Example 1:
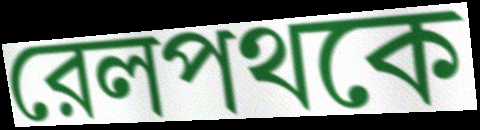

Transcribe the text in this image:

রেলপথকে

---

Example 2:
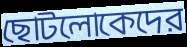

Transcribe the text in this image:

ছোটলোকেদের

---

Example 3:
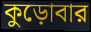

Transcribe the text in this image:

কুড়োবার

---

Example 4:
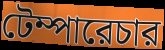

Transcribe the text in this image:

টেম্পারেচার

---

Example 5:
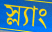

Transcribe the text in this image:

স্ল্যাং